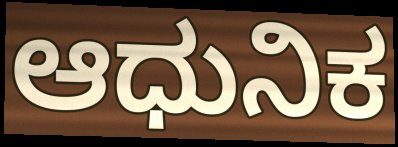
ಆಧುನಿಕ